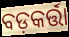
ବଡ଼କର୍ତ୍ତା